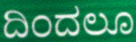
ದಿಂದಲೂ